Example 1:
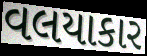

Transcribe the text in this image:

વલયાકાર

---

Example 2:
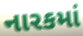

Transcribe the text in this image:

નારકમાં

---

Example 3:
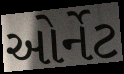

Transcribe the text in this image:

ઓર્નેટ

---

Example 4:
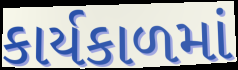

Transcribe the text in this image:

કાર્યકાળમાં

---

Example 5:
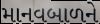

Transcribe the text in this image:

માનવબાળને